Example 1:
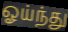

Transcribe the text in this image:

ஓய்ந்து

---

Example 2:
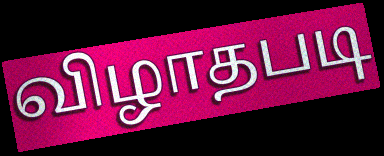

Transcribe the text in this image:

விழாதபடி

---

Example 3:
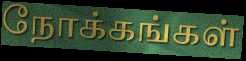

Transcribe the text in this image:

நோக்கங்கள்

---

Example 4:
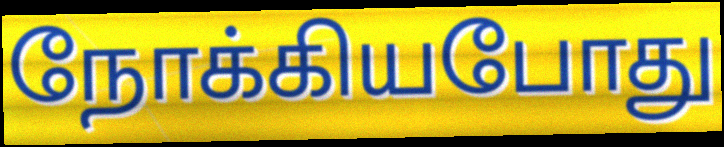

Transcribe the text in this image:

நோக்கியபோது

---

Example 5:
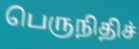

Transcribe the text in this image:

பெருநிதிச்